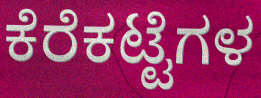
ಕೆರೆಕಟ್ಟೆಗಳ